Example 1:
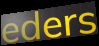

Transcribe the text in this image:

eders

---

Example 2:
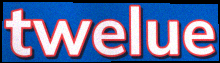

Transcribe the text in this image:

twelue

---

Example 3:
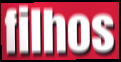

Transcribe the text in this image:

filhos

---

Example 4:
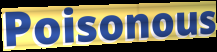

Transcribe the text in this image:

Poisonous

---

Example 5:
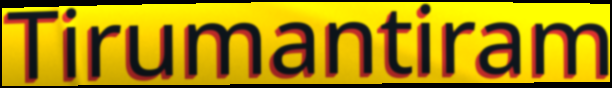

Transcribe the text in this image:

Tirumantiram